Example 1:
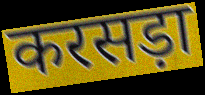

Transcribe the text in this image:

करसड़ा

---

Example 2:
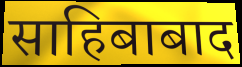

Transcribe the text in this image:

साहिबाबाद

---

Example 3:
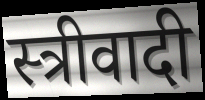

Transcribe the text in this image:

स्त्रीवादी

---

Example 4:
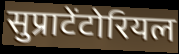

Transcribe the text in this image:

सुप्राटेंटोरियल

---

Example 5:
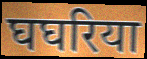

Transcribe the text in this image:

घघरिया